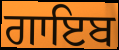
ਗਾਇਬ